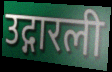
उद्गारली